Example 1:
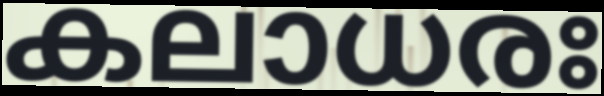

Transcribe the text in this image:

കലാധരഃ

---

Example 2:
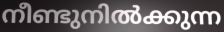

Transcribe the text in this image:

നീണ്ടുനിൽക്കുന്ന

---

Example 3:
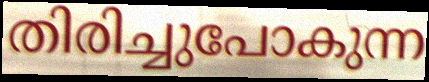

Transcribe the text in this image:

തിരിച്ചുപോകുന്ന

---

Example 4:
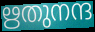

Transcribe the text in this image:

ഋതുനന്ദ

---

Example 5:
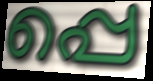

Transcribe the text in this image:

പ്പെ